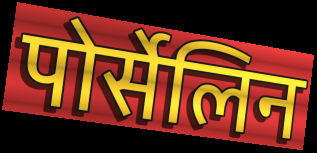
पोर्सेलिन